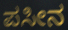
ಪಸೀನ